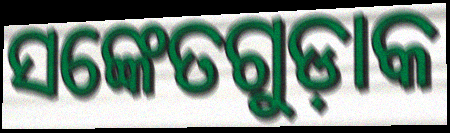
ସଙ୍କେତଗୁଡ଼ାକ